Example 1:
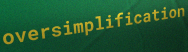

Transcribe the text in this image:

oversimplification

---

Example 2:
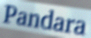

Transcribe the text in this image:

Pandara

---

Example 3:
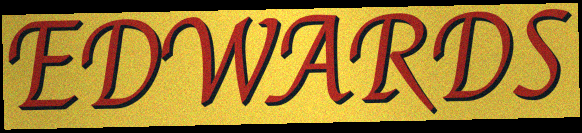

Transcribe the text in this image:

EDWARDS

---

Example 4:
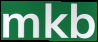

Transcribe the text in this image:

mkb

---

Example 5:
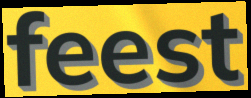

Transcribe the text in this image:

feest